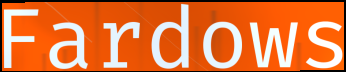
Fardows